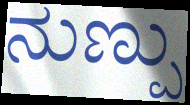
ನುಣ್ಪು